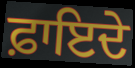
ਫ਼ਾਇਦੇ